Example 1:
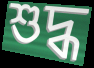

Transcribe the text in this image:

শুদ্ধ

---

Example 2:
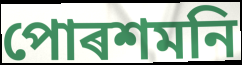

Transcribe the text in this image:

পোৰশমনি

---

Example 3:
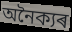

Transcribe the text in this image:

অনৈক্যৰ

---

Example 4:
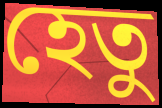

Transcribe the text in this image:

হেতু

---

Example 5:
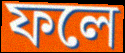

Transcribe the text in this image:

ফলে